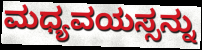
ಮಧ್ಯವಯಸ್ಸನ್ನು